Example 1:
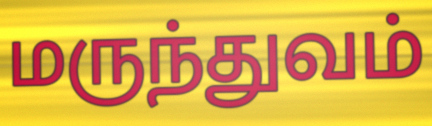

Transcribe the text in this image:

மருந்துவம்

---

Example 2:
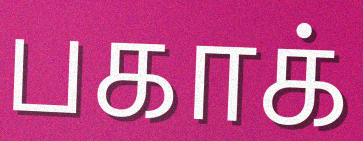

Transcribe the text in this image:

பகாக்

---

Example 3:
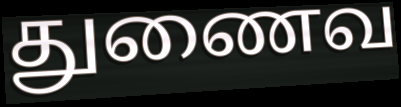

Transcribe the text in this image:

துணைவ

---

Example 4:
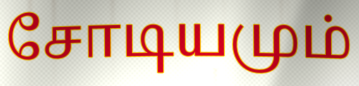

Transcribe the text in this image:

சோடியமும்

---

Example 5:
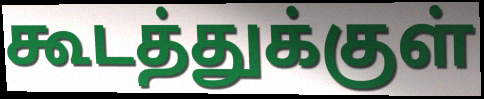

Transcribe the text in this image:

கூடத்துக்குள்